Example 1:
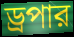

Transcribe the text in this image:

ড্রপার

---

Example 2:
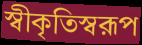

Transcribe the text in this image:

স্বীকৃতিস্বরূপ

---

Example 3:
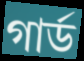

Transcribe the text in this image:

গার্ড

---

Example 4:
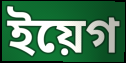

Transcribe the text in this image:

ইয়েগ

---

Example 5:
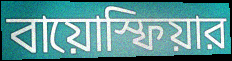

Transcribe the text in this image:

বায়োস্ফিয়ার